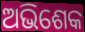
ଅଭିଶେକ